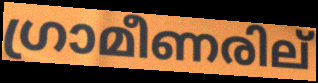
ഗ്രാമീണരില്